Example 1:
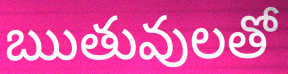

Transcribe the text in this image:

ఋతువులతో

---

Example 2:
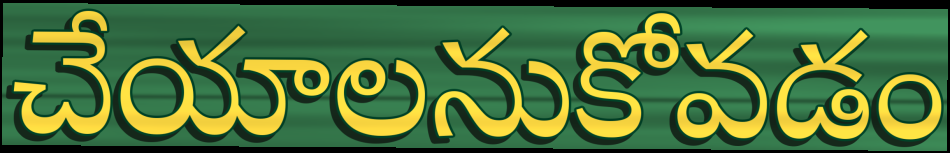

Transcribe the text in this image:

చేయాలనుకోవడం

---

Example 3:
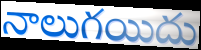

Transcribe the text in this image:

నాలుగయిదు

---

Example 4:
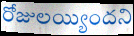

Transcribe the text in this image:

రోజులయ్యిందని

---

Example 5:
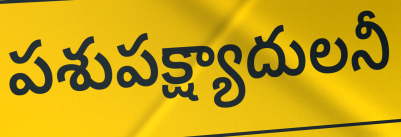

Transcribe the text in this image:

పశుపక్ష్యాదులనీ